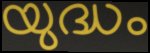
യുദ്ധം